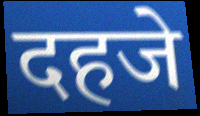
दहजे